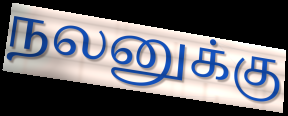
நலனுக்கு